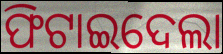
ଫିଟାଇଦେଲା